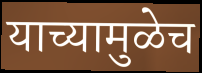
याच्यामुळेच